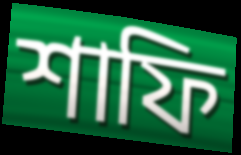
শাফি